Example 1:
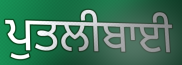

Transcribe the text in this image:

ਪੁਤਲੀਬਾਈ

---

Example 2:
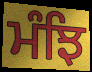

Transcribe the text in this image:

ਮੰਝਿ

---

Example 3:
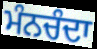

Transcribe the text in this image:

ਮੰਨਚੰਦਾ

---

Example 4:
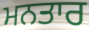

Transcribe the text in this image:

ਮਨਤਾਰ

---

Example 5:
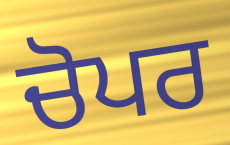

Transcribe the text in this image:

ਚੋਪਰ